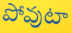
పోవుటా